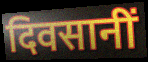
दिवसानीं